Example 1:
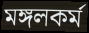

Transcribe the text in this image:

মঙ্গলকর্ম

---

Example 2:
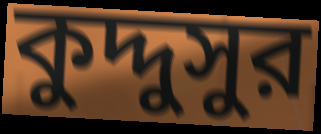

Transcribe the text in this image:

কুদ্দুসুর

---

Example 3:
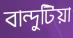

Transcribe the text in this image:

বান্দুটিয়া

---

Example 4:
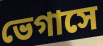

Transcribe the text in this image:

ভেগাসে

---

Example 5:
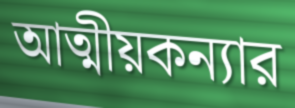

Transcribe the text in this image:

আত্মীয়কন্যার